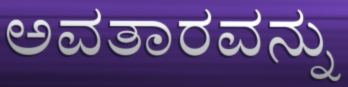
ಅವತಾರವನ್ನು